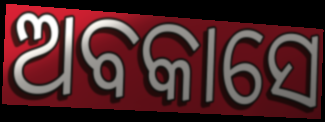
ଅବକାସେ